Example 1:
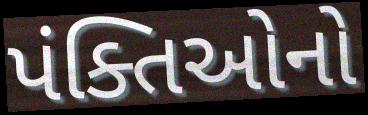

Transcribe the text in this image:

પંક્તિઓનો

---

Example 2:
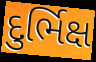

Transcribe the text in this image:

દુર્ભિક્ષ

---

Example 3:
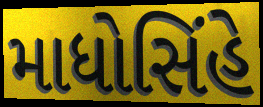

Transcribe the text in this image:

માધોસિંહે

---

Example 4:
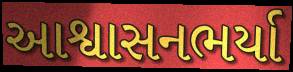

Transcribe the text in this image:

આશ્વાસનભર્યા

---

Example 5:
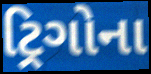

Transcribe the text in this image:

ટ્રિગોના